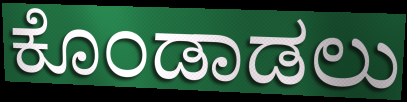
ಕೊಂಡಾಡಲು